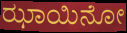
ಝಾಯಿನೋ